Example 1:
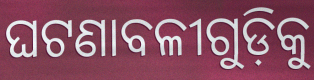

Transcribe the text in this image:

ଘଟଣାବଳୀଗୁଡ଼ିକୁ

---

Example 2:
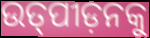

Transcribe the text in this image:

ଉତ୍‌ପୀଡ଼ନକୁ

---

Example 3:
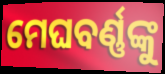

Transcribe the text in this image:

ମେଘବର୍ଣ୍ଣଙ୍କୁ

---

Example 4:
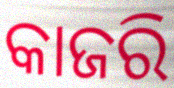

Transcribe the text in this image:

କାଜରି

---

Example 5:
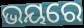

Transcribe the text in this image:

ଭୟରେ